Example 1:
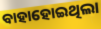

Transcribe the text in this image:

ବାହାହୋଇଥିଲା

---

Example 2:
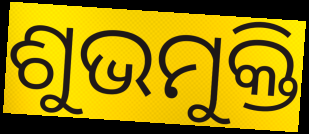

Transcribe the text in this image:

ଶୁଭମୁକ୍ତି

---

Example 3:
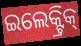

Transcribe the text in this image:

ଇଲେକ୍ଟ୍ରିକ୍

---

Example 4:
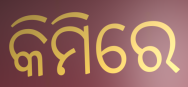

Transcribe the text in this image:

କିମିରେ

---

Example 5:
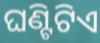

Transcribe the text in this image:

ଘଣ୍ଟିଟିଏ